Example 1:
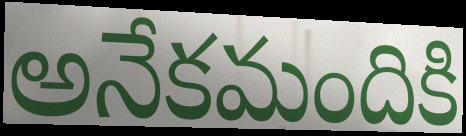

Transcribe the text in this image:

అనేకమందికి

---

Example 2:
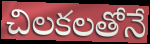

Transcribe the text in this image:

చిలకలతోనే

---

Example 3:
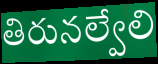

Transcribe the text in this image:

తిరునల్వేలి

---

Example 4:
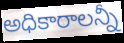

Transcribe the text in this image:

అధికారాలన్నీ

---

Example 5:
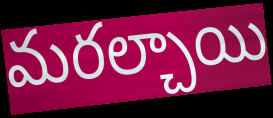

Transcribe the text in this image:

మరల్చాయి